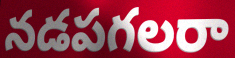
నడపగలరా